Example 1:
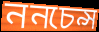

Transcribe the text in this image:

ননচেন্স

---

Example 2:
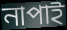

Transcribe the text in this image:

নাপাই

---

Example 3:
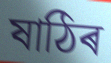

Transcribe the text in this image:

ষাঠিৰ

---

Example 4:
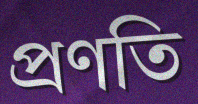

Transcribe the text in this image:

প্ৰণতি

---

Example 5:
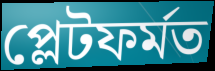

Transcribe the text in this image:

প্লেটফৰ্মত